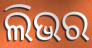
ଲିଭର